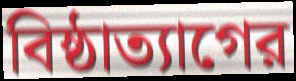
বিষ্ঠাত্যাগের